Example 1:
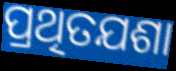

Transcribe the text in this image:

ପ୍ରଥିତଯଶା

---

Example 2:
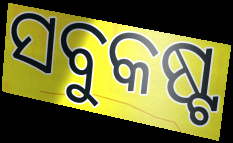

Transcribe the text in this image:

ସବୁକଷ୍ଟ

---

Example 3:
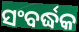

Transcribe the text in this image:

ସଂବର୍ଦ୍ଧକ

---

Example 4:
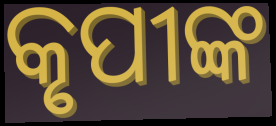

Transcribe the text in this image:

କୃପୀଙ୍କ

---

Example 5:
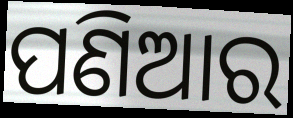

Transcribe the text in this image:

ପଣିଆର